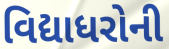
વિદ્યાધરોની